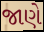
જાણે